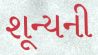
શૂન્યની